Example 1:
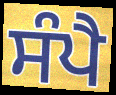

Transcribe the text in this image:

ਸੰਪੈ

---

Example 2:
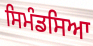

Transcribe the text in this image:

ਸਿਮੰਡਸਿਆ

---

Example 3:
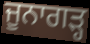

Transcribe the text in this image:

ਜੂਨਾਗੜ੍ਹ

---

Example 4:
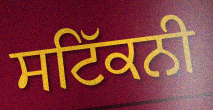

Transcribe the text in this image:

ਸਟਿੱਕਨੀ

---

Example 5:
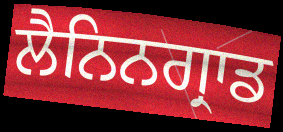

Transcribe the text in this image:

ਲੈਨਿਨਗ੍ਰਾਡ